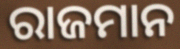
ରାଜମାନ